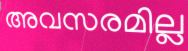
അവസരമില്ല